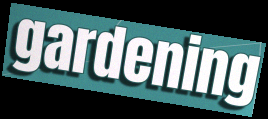
gardening